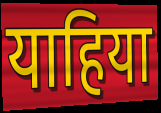
याहिया